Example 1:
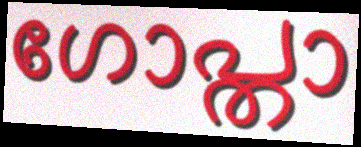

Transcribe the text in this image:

ഗോപ്താ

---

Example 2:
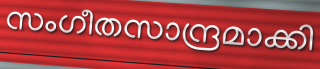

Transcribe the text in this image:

സംഗീതസാന്ദ്രമാക്കി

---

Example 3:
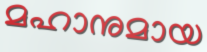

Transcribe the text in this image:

മഹാനുമായ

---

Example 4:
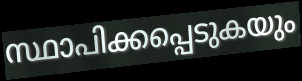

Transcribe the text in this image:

സ്ഥാപിക്കപ്പെടുകയും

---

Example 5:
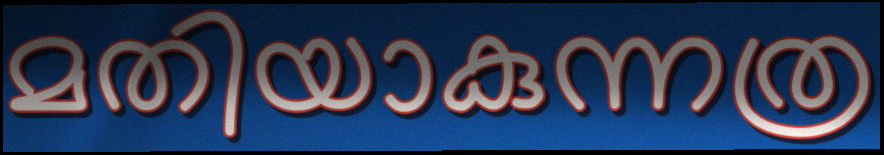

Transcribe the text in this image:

മതിയാകുന്നത്ര